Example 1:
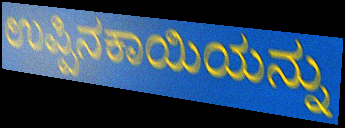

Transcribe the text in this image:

ಉಪ್ಪಿನಕಾಯಿಯನ್ನು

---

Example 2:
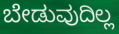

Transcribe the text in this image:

ಬೇಡುವುದಿಲ್ಲ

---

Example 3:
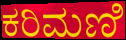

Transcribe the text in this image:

ಕರಿಮಣಿ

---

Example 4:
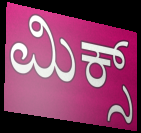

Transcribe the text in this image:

ಮಿಕ್ಸ್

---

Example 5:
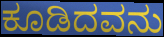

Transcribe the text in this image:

ಕೂಡಿದವನು